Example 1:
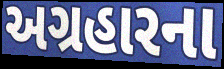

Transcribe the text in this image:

અગ્રહારના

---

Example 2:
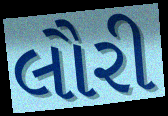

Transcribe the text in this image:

લૌરી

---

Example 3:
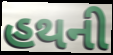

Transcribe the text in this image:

હથની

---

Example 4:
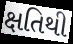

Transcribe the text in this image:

ક્ષતિથી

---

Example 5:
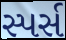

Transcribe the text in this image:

સ્પર્સ